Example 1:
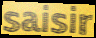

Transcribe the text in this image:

saisir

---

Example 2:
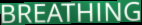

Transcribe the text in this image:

BREATHING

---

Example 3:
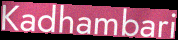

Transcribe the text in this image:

Kadhambari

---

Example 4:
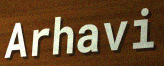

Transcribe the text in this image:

Arhavi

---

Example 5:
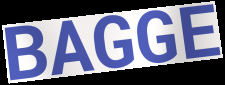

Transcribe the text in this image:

BAGGE